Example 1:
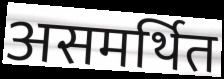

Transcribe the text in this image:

असमर्थित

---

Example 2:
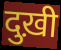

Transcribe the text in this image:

दुख़ी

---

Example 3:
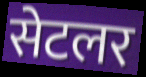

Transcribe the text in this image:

सेटलर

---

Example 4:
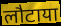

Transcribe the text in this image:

लौटाया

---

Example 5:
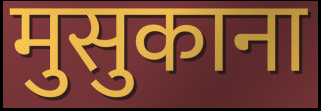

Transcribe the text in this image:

मुसुकाना